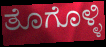
ತೊಗೊಳ್ಳಿ